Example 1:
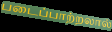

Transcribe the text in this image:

படைப்பாற்றலால்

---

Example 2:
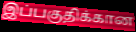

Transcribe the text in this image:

இப்பகுதிக்கான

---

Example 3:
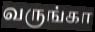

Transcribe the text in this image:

வருங்கா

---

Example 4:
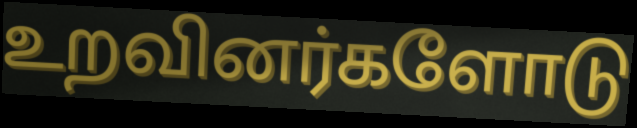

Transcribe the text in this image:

உறவினர்களோடு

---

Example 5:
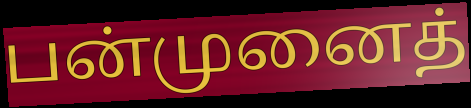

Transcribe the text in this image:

பன்முனைத்